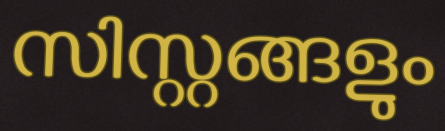
സിസ്റ്റങ്ങളും